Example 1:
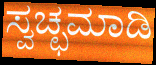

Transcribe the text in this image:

ಸ್ವಚ್ಛಮಾಡಿ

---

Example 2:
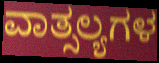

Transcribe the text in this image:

ವಾತ್ಸಲ್ಯಗಳ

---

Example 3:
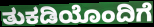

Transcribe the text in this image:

ತುಕಡಿಯೊಂದಿಗೆ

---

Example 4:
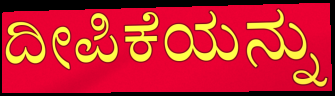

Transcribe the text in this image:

ದೀಪಿಕೆಯನ್ನು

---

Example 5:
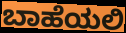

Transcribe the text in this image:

ಬಾಹೆಯಲಿ